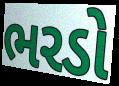
ભરડો